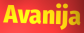
Avanija